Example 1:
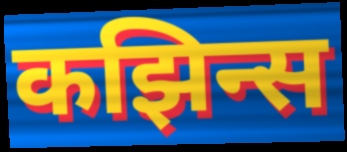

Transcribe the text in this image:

कझिन्स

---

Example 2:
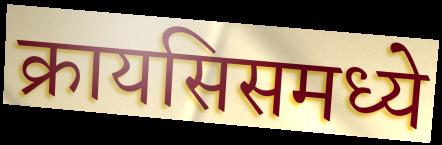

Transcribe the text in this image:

क्रायसिसमध्ये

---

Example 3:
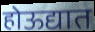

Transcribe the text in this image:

होऊद्यात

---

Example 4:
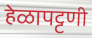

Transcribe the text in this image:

हेळापट्टणी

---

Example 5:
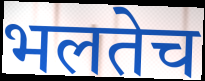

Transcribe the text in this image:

भलतेच